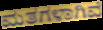
ಮತಗಳಾಗಿವೆ